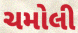
ચમોલી